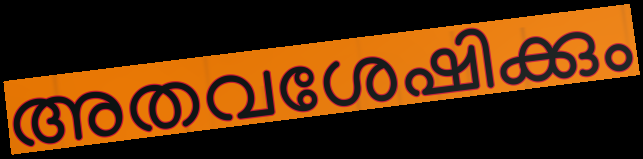
അതവശേഷിക്കും